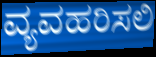
ವ್ಯವಹರಿಸಲಿ